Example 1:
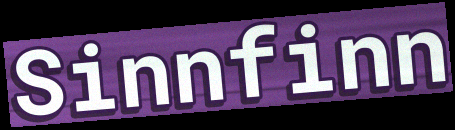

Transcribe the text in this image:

Sinnfinn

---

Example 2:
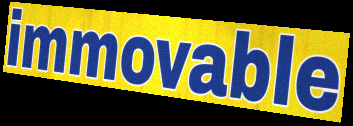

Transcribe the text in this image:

immovable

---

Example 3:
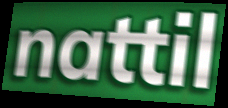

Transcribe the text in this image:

nattil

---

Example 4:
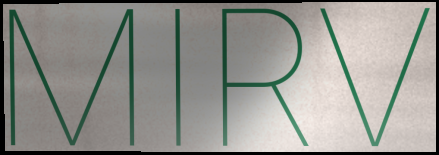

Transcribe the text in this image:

MIRV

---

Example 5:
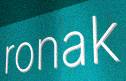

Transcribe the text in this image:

ronak